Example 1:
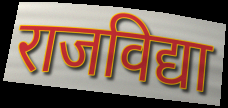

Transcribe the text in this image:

राजविद्या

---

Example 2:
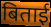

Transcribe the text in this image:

बिताई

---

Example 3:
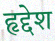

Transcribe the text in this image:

हृद्देश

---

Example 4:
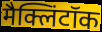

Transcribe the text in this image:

मैक्लिंटॉक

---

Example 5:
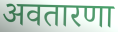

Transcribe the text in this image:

अवतारणा